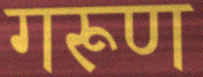
गरूण